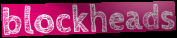
blockheads